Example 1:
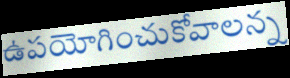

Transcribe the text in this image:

ఉపయోగించుకోవాలన్న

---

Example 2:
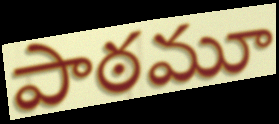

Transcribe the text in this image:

పాఠమూ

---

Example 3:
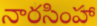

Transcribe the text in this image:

నారసింహా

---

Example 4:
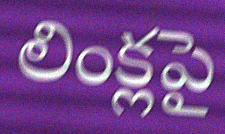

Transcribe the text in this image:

లింక్లపై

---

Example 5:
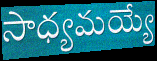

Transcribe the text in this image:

సాధ్యమయ్యే